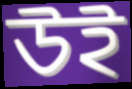
উই